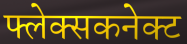
फ्लेक्सकनेक्ट